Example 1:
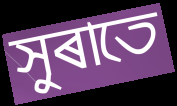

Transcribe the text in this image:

সুৰাতে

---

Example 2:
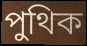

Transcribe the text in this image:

পুথিক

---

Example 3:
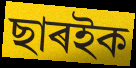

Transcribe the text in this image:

ছাৰইক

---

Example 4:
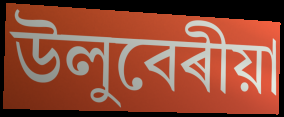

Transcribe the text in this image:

উলুবেৰীয়া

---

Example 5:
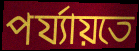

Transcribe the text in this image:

পৰ্য্যায়তে